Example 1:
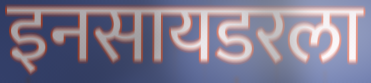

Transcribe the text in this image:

इनसायडरला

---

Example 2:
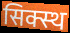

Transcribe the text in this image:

सिक्स्थ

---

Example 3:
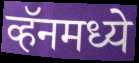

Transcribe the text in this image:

व्हॅनमध्ये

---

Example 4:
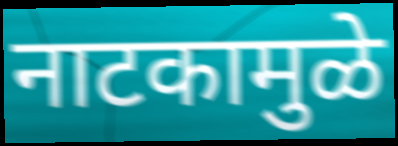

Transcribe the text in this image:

नाटकामुळे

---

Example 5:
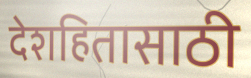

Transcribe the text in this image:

देशहितासाठी